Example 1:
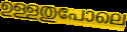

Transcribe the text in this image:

ഉള്ളതുപോലെ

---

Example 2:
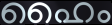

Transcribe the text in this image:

ഹൈം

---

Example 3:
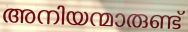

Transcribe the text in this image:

അനിയന്മാരുണ്ട്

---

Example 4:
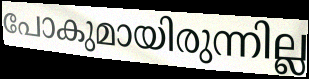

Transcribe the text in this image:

പോകുമായിരുന്നില്ല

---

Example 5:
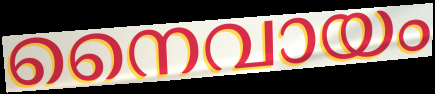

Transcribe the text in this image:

നൈവായം